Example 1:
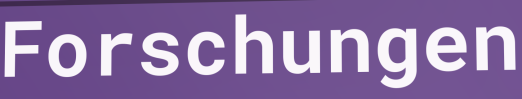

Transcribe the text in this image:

Forschungen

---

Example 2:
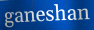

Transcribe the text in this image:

ganeshan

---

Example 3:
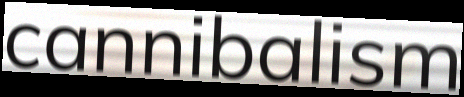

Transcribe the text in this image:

cannibalism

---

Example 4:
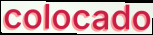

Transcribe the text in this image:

colocado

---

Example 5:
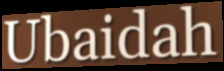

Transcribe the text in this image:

Ubaidah